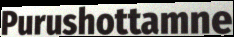
Purushottamne